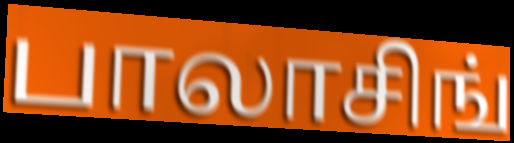
பாலாசிங்